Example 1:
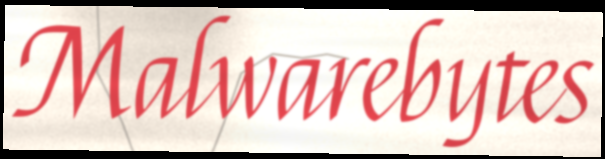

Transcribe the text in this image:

Malwarebytes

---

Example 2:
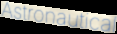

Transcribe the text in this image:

Astronautical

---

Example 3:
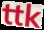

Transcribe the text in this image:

ttk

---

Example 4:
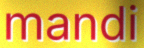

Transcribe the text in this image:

mandi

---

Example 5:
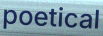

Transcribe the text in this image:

poetical